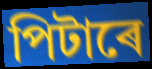
পিটাৰে